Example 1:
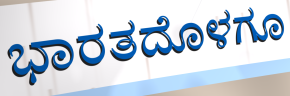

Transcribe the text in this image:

ಭಾರತದೊಳಗೂ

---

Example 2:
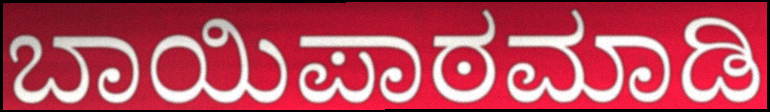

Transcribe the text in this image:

ಬಾಯಿಪಾಠಮಾಡಿ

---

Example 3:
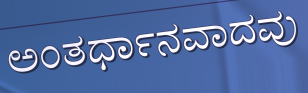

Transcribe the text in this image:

ಅಂತರ್ಧಾನವಾದವು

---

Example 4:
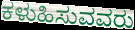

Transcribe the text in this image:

ಕಳುಹಿಸುವವರು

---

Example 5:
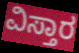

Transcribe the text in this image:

ವಿಸ್ತಾರ